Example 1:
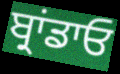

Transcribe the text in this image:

ਬ੍ਰਾਂਡਾਓ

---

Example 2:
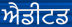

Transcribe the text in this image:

ਐਡੀਟਡ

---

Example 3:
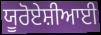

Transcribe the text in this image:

ਯੂਰੋਏਸ਼ੀਆਈ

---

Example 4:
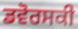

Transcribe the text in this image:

ਡਵੋਰਸਕੀ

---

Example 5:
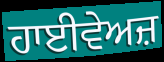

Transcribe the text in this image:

ਹਾਈਵੇਅਜ਼